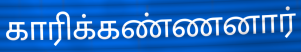
காரிக்கண்ணனார்